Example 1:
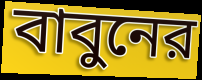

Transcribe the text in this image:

বাবুনের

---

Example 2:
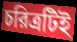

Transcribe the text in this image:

চরিত্রটিই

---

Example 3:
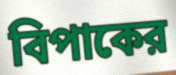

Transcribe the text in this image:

বিপাকের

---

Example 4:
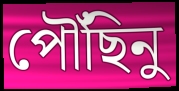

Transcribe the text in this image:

পৌঁছিনু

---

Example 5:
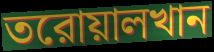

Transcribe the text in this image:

তরোয়ালখান